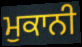
ਮੁਕਾਨੀ